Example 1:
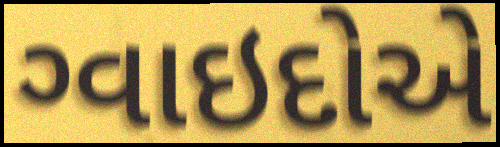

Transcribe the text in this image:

ગ્વાઇદોએ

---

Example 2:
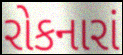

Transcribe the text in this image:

રોકનારાં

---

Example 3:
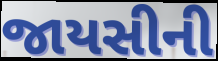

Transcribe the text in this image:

જાયસીની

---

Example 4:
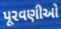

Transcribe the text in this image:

પૂરવણીઓ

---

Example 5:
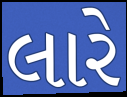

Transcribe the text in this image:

લારે